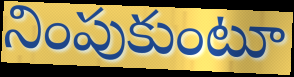
నింపుకుంటూ